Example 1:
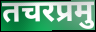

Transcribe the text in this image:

तचरप्रमु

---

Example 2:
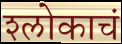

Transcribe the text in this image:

श्लोकाचं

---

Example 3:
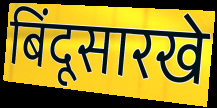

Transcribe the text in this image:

बिंदूसारखे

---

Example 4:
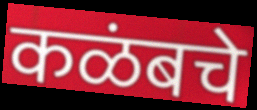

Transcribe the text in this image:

कळंबचे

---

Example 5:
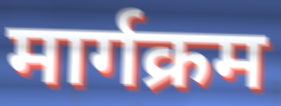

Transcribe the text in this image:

मार्गक्रम